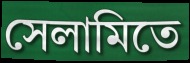
সেলামিতে